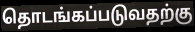
தொடங்கப்படுவதற்கு